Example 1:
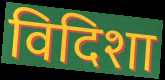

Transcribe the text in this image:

विदिशा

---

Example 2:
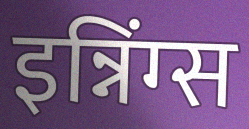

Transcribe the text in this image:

इन्निंग्स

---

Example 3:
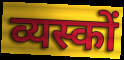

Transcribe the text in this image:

व्यस्कों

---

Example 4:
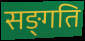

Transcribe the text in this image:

सङ्गति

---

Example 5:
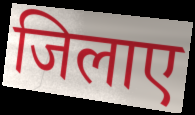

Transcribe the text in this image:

जिलाए